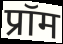
प्रॉम